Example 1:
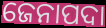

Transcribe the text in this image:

ଜେନାପଦା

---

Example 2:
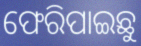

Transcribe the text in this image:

ଫେରିପାଇଛୁ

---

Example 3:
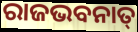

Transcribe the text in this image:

ରାଜଭବନାତ୍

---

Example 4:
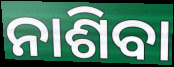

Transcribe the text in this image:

ନାଶିବା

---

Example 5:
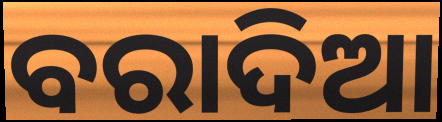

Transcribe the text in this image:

ବରାଦିଆ